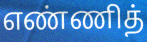
எண்ணித்